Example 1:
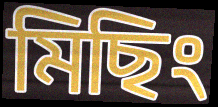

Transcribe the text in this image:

মিছিং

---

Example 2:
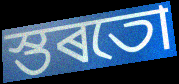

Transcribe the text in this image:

স্তৰতো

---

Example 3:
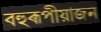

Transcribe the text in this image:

বহুৰূপীয়াজন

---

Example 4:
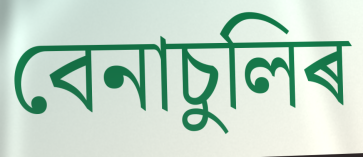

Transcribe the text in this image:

বেনাচুলিৰ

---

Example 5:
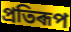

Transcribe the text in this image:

প্ৰতিৰূপ